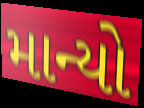
માન્યો